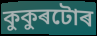
কুকুৰটোৰ